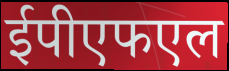
ईपीएफएल